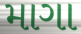
માગા